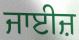
ਜਾਈਜ਼